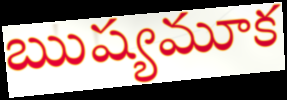
ఋష్యమూక